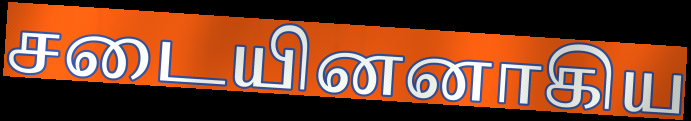
சடையினனாகிய